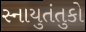
સ્નાયુતંતુકો